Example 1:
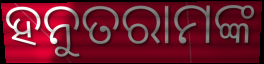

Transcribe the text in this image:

ହନୁତରାମଙ୍କ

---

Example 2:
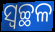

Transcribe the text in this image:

ସ୍ୱଚ୍ଛଳ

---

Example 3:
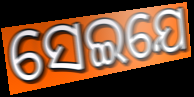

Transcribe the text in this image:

ସେଇଯେ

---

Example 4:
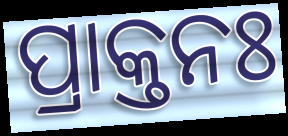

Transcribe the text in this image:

ପ୍ରାକ୍ତନଃ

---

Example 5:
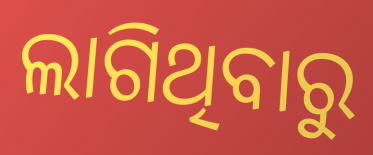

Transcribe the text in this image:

ଲାଗିଥିବାରୁ